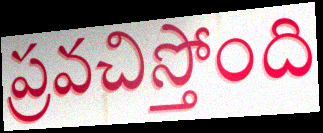
ప్రవచిస్తోంది